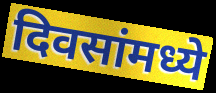
दिवसांमध्ये